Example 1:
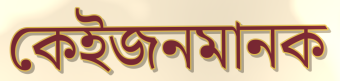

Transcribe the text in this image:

কেইজনমানক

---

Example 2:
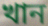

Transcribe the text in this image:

খান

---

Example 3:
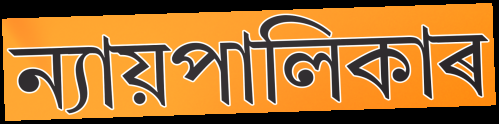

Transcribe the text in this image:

ন্যায়পালিকাৰ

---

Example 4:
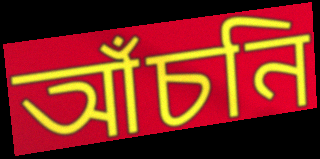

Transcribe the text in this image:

আঁচনি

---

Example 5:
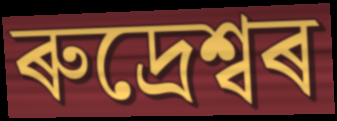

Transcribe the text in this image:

ৰুদ্ৰেশ্বৰ